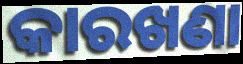
କାରଖଣା